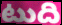
టుది